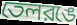
তেলরঙে